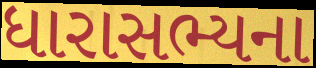
ધારાસભ્યના